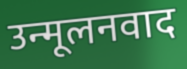
उन्मूलनवाद